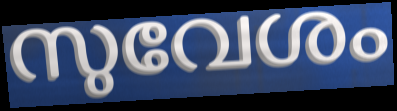
സുവേശം